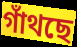
গাঁথছে